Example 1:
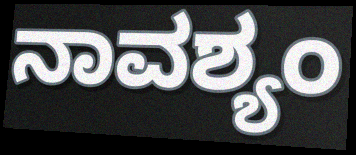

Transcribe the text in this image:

ನಾವಶ್ಯಂ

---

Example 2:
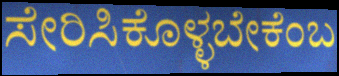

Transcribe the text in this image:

ಸೇರಿಸಿಕೊಳ್ಳಬೇಕೆಂಬ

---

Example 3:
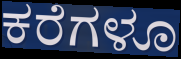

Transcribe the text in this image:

ಕರೆಗಳೂ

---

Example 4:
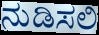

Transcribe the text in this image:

ನುಡಿಸಲಿ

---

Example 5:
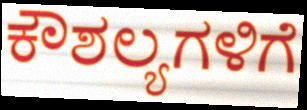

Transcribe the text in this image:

ಕೌಶಲ್ಯಗಳಿಗೆ